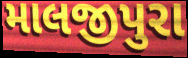
માલજીપુરા